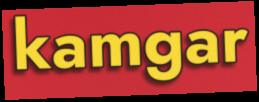
kamgar